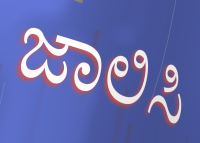
ಜಾಲಿಸಿ